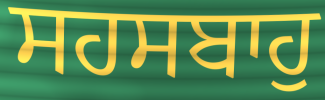
ਸਹਸਬਾਹੁ